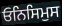
ਓਨਿਸਿਮੁਸ